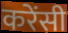
करेंसी